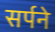
सर्पने